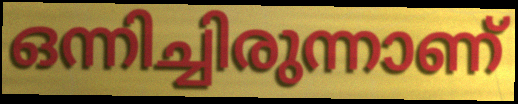
ഒന്നിച്ചിരുന്നാണ്